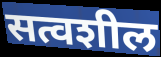
सत्वशील